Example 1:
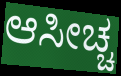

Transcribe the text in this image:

ಆಸೀಚ್ಚ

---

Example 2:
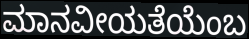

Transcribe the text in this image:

ಮಾನವೀಯತೆಯೆಂಬ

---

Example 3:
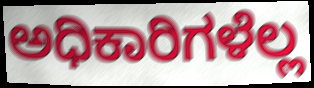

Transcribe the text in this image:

ಅಧಿಕಾರಿಗಳೆಲ್ಲ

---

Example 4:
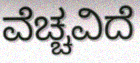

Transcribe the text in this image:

ವೆಚ್ಚವಿದೆ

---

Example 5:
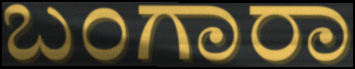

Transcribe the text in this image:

ಬಂಗಾರಾ